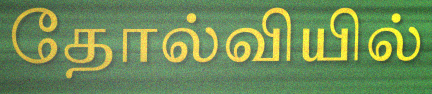
தோல்வியில்